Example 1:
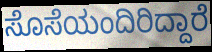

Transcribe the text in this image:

ಸೊಸೆಯಂದಿರಿದ್ದಾರೆ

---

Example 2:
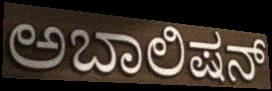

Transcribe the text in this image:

ಅಬಾಲಿಷನ್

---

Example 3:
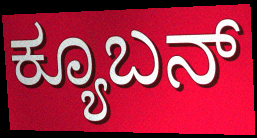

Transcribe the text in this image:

ಕ್ಯೂಬನ್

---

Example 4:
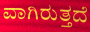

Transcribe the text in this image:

ವಾಗಿರುತ್ತದೆ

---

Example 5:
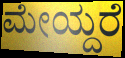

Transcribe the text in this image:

ಮೇಯ್ದರೆ